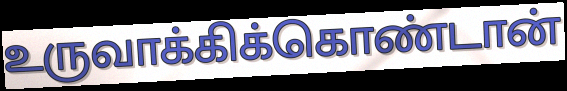
உருவாக்கிக்கொண்டான்